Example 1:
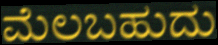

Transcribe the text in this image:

ಮೆಲಬಹುದು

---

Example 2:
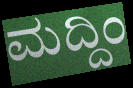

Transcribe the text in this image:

ಮದ್ದಿಂ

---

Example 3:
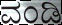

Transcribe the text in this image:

ವಂಡಿ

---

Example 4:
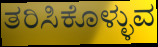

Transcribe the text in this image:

ತರಿಸಿಕೊಳ್ಳುವ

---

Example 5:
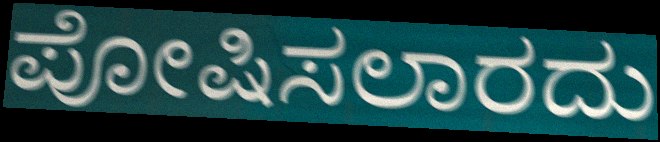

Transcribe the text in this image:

ಪೋಷಿಸಲಾರದು